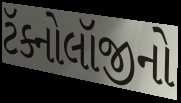
ટૅક્નોલૉજીનો